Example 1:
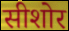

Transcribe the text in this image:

सीशोर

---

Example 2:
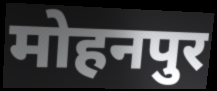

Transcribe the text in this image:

मोहनपुर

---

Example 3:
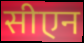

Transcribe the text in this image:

सीएन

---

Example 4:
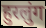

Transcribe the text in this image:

हुरलुंग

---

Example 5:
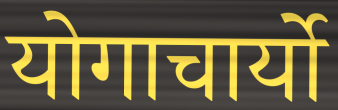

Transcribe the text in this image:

योगाचार्यो